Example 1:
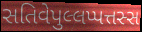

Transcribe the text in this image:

સતિવેપુલ્લપ્પત્તસ્સ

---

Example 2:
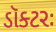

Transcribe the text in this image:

ડૉક્ટરઃ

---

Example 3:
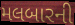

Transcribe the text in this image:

મલબારની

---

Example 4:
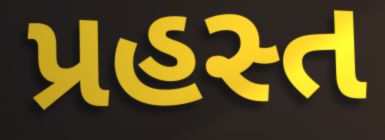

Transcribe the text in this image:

પ્રહસ્ત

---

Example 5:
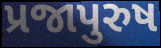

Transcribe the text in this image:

પ્રજાપુરુષ